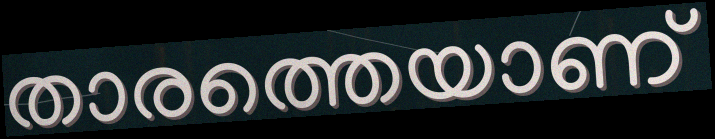
താരത്തെയാണ്